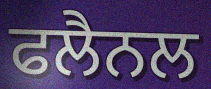
ਫਲੈਨਲ